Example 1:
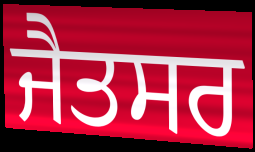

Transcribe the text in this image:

ਜੈਤਸਰ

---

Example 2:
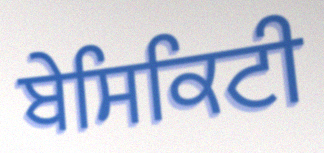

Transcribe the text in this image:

ਬੇਸਿਕਿਟੀ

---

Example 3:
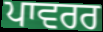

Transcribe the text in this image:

ਪਾਵਰਰ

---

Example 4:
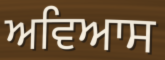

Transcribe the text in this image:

ਅਵਿਆਸ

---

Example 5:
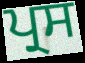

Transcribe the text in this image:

ਪ੍ਰਸ